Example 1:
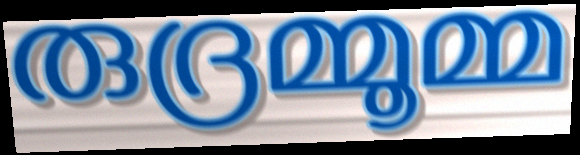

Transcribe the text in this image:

രുദ്രമ്മൂമ്മ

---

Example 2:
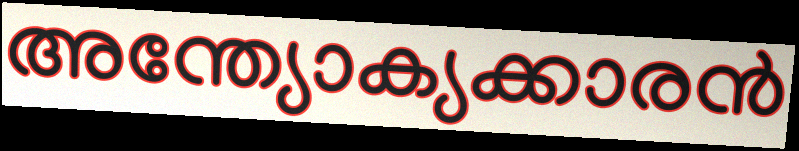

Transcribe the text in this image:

അന്ത്യോക്യക്കാരൻ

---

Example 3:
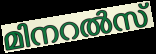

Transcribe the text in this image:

മിനറൽസ്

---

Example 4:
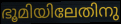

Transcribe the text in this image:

ഭൂമിയിലേതിനു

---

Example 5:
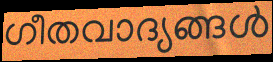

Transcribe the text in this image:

ഗീതവാദ്യങ്ങൾ